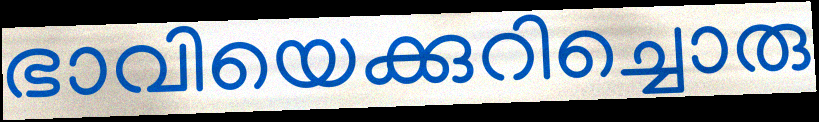
ഭാവിയെക്കുറിച്ചൊരു